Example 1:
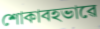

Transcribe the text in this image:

শোকাবহভাৱে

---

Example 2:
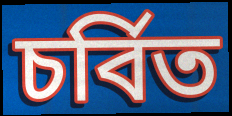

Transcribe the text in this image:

চৰ্বিত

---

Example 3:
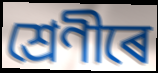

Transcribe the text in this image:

শ্ৰেণীৰে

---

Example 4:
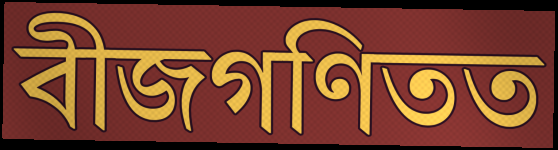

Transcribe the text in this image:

বীজগণিতত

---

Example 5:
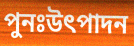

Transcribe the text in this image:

পুনঃউৎপাদন